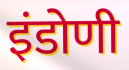
इंडोणी